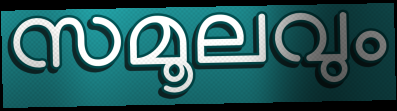
സമൂലവും